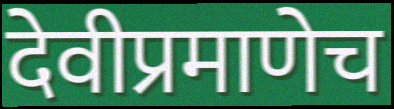
देवीप्रमाणेच